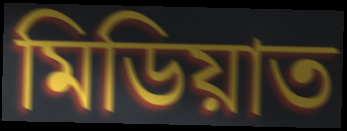
মিডিয়াত